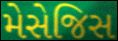
મેસેજિસ